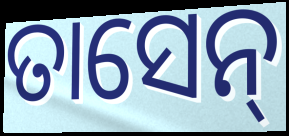
ତାସେନ୍